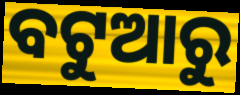
ବଟୁଆରୁ